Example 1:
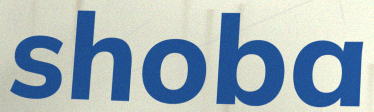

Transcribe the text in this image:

shoba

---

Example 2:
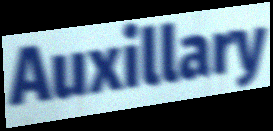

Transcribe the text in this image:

Auxillary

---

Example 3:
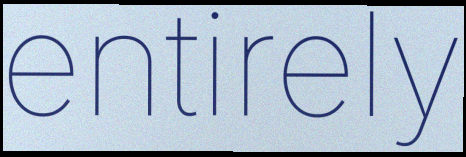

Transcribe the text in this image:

entirely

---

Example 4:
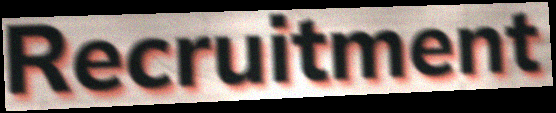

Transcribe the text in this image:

Recruitment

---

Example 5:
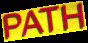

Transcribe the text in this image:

PATH